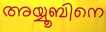
അയ്യൂബിനെ